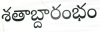
శతాబ్దారంభం